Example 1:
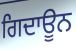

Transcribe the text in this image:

ਗਿਦਾਊਨ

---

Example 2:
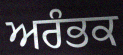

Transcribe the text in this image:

ਅਰੰਭਕ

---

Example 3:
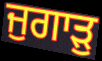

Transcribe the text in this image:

ਜੁਗਾੜੁ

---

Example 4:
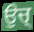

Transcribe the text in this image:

ਉਚ੍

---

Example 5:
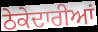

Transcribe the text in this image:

ਠੇਕੇਦਾਰੀਆਂ